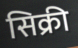
सिक्री